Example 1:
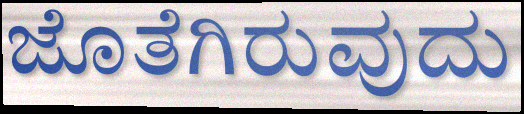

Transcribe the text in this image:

ಜೊತೆಗಿರುವುದು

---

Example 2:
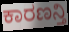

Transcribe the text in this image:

ಕಾರಣನ್ತಿ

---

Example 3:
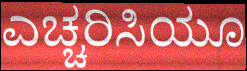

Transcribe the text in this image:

ಎಚ್ಚರಿಸಿಯೂ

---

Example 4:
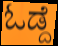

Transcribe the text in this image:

ಓಡ್ದೆ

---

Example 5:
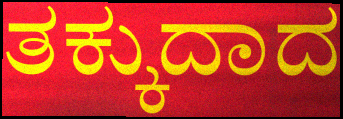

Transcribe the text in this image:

ತಕ್ಕುದಾದ